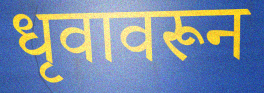
धृवावरून